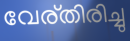
വേര്തിരിച്ചു